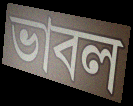
ভাবল